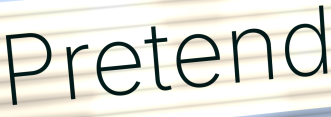
Pretend